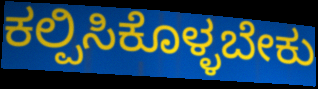
ಕಲ್ಪಿಸಿಕೊಳ್ಳಬೇಕು